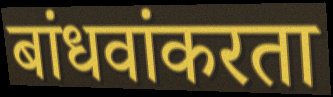
बांधवांकरता